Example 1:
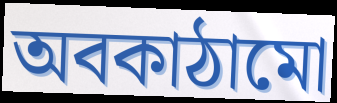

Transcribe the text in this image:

অবকাঠামো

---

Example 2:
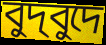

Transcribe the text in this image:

বুদ্‌বুদে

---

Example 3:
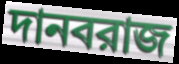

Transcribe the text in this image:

দানবরাজ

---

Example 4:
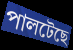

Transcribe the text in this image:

পালটেছে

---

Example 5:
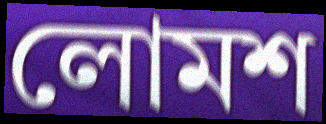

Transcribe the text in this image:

লোমশ